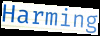
Harming